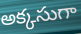
అక్కసుగా